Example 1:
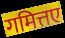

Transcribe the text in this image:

गमित्तए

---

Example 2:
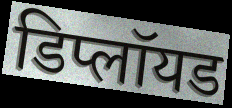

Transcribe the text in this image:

डिप्लॉयड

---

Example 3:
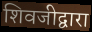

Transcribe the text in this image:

शिवजीद्वारा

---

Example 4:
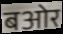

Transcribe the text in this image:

बओर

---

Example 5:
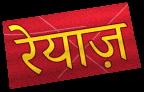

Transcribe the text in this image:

रेयाज़